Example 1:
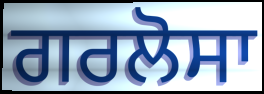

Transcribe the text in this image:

ਗਰਲੋਸਾ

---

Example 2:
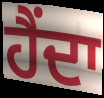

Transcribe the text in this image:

ਹੈਂਦਾ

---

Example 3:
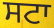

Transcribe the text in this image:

ਸਟਾ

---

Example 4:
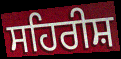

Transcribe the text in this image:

ਸਹਿਰੀਸ਼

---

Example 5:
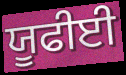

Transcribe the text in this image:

ਯੂਫੀਈ